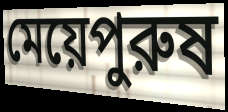
মেয়েপুরুষ